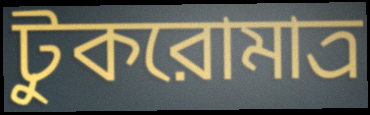
টুকরোমাত্র